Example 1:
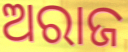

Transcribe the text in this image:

ଅରାଜ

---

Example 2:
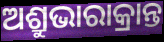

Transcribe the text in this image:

ଅଶ୍ରୁଭାରାକ୍ରାନ୍ତ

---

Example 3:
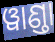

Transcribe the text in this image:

ୱାଣ୍ଡା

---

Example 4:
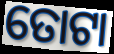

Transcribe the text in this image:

ତୋଟା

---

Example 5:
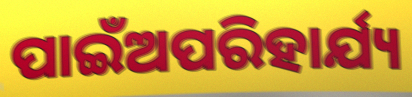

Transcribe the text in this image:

ପାଇଁଅପରିହାର୍ଯ୍ୟ